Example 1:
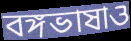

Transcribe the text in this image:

বঙ্গভাষাও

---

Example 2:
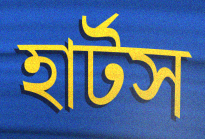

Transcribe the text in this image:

হার্টস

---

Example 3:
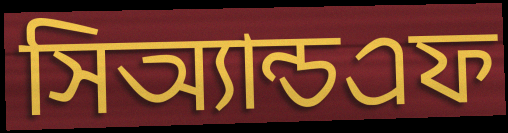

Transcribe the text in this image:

সিঅ্যান্ডএফ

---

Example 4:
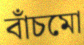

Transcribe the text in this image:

বাঁচমো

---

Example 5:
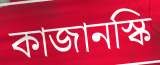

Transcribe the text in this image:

কাজানস্কি